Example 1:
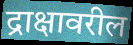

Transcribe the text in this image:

द्राक्षावरील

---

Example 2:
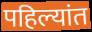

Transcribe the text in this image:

पहिल्यांत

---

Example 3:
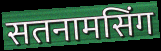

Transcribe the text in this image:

सतनामसिंग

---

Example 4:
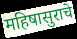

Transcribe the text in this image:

महिषासुराचे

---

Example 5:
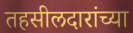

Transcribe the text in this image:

तहसीलदारांच्या